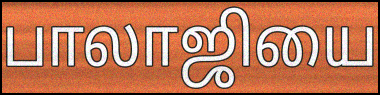
பாலாஜியை